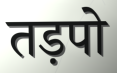
तड़पो